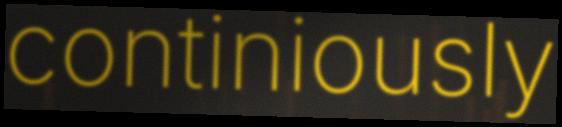
continiously